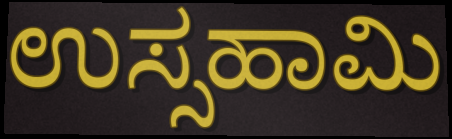
ಉಸ್ಸಹಾಮಿ